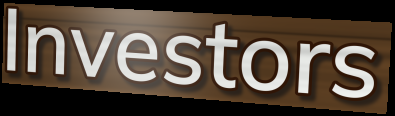
Investors